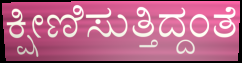
ಕ್ಷೀಣಿಸುತ್ತಿದ್ದಂತೆ